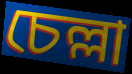
চেল্লা